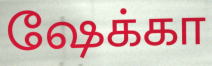
ஷேக்கா